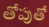
తోపుతో